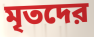
মৃতদের